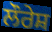
ਲੌਰੇਸ਼